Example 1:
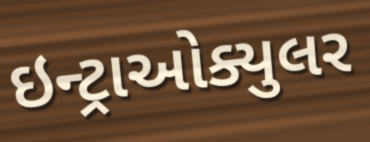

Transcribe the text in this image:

ઇન્ટ્રાઓક્યુલર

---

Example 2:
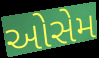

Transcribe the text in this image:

ઓસેમ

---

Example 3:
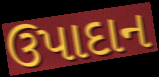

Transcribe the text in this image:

ઉપાદાન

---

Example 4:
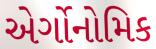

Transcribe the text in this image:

એર્ગોનોમિક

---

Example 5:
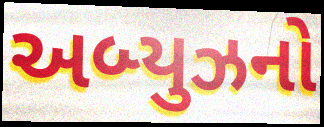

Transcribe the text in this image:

અબ્યુઝનો